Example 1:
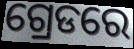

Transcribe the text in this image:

ଗ୍ରେଡରେ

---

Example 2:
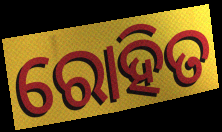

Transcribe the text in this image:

ରୋହିତ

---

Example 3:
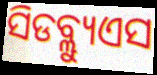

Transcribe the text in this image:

ସିଡବ୍ଲ୍ୟୁଏସ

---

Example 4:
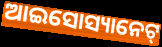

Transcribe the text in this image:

ଆଇସୋସ୍ୟାନେଟ୍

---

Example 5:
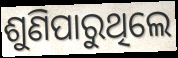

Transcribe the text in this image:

ଶୁଣିପାରୁଥିଲେ